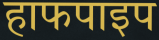
हाफपाइप